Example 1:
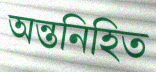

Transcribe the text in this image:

অন্তনিহিত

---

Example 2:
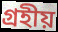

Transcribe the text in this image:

গ্রহীয়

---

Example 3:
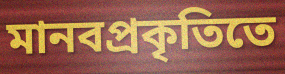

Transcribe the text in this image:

মানবপ্রকৃতিতে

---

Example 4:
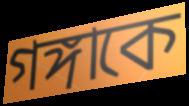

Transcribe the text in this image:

গঙ্গাকে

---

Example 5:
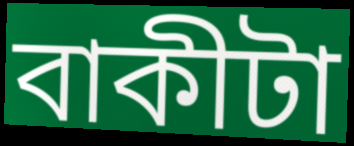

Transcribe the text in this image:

বাকীটা